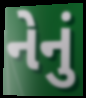
નેનું